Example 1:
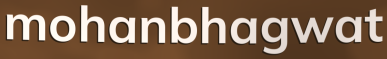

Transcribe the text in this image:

mohanbhagwat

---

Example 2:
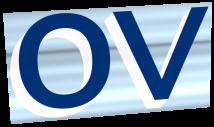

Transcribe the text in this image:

OV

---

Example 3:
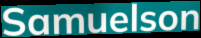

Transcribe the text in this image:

Samuelson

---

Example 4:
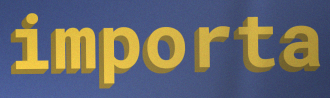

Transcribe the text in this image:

importa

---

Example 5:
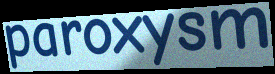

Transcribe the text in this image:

paroxysm